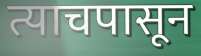
त्याचपासून